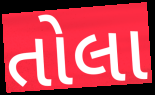
તોલા